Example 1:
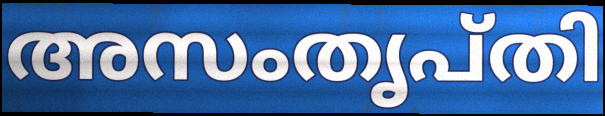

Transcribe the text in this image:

അസംതൃപ്തി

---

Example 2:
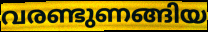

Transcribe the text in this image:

വരണ്ടുണങ്ങിയ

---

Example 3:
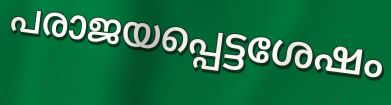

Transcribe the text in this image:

പരാജയപ്പെട്ടശേഷം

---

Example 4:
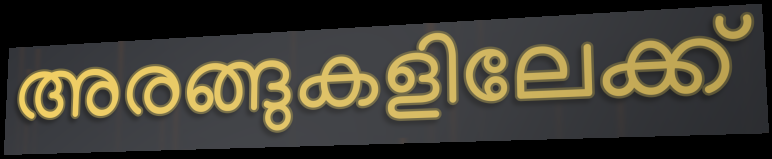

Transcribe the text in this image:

അരങ്ങുകളിലേക്ക്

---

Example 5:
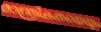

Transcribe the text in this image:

മാന്ത്രികതയെയും